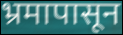
भ्रमापासून